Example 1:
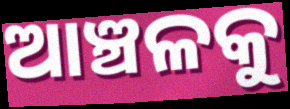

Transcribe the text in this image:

ଆଞ୍ଚଳକୁ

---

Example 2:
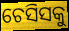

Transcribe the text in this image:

ଚେସିସକୁ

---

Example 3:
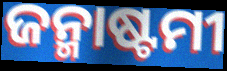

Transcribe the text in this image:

ଜନ୍ମାଷ୍ଟମୀ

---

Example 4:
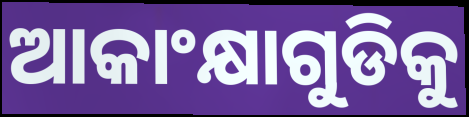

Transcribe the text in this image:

ଆକାଂକ୍ଷାଗୁଡିକୁ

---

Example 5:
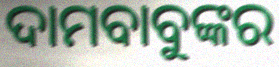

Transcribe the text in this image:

ଦାମବାବୁଙ୍କର